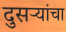
दुसऱ्यांचा